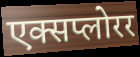
एक्सप्लोरर